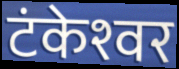
टंकेश्वर